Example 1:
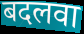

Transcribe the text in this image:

बदलवा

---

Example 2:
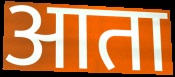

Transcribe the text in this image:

आता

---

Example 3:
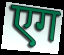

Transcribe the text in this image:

एग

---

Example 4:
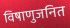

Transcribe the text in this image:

विषाणुजनित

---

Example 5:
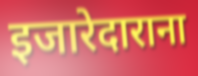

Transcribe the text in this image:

इजारेदाराना